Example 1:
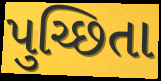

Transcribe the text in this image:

પુચ્છિતા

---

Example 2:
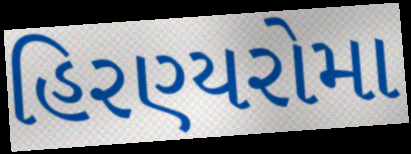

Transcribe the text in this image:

હિરણ્યરોમા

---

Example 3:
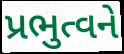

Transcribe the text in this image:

પ્રભુત્વને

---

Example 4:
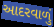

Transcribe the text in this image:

આદરવાળું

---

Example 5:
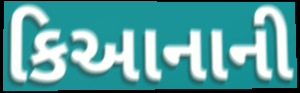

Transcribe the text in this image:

કિઆનાની